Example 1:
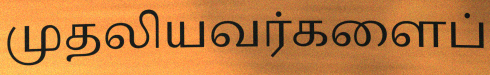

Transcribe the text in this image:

முதலியவர்களைப்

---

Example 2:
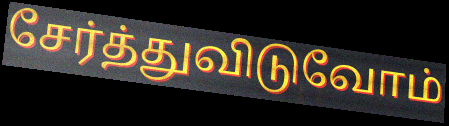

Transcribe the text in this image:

சேர்த்துவிடுவோம்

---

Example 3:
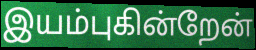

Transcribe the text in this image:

இயம்புகின்றேன்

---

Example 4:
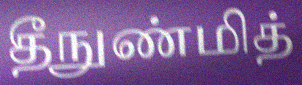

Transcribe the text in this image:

தீநுண்மித்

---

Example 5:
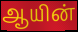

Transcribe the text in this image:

ஆயின்